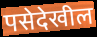
पसेदेखील